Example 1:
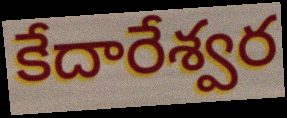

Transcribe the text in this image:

కేదారేశ్వర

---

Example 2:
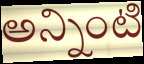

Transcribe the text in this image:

అన్నింటి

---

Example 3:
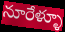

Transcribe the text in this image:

నూరేళ్ళూ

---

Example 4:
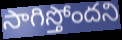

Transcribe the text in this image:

సాగిస్తోందని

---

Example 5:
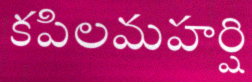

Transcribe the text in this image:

కపిలమహర్షి